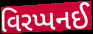
વિરપ્પનઈ